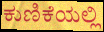
ಕುಣಿಕೆಯಲ್ಲಿ